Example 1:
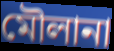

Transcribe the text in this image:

মৌলানা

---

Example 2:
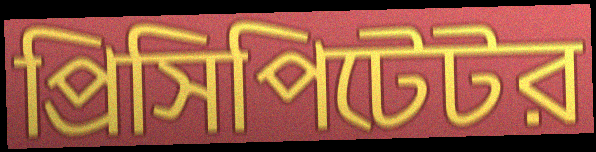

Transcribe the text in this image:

প্রিসিপিটেটর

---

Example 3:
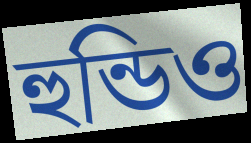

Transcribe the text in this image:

হুন্ডিও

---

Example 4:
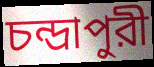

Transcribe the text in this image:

চন্দ্রাপুরী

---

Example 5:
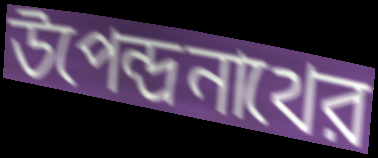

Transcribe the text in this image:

উপেন্দ্রনাথের